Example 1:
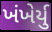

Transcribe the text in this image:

ખંખેર્યુ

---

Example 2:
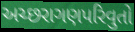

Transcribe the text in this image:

અચ્છરાગણપરિવુતો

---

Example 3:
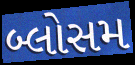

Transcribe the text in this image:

બ્લોસમ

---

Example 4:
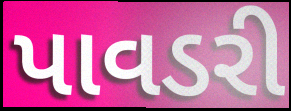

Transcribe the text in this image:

પાવડરી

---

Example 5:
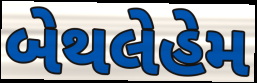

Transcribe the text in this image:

બેથલેહેમ